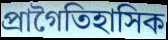
প্রাগৈতিহাসিক